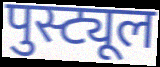
पुस्ट्यूल